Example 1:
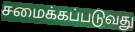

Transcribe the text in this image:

சமைக்கப்படுவது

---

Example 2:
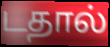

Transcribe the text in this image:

டதால்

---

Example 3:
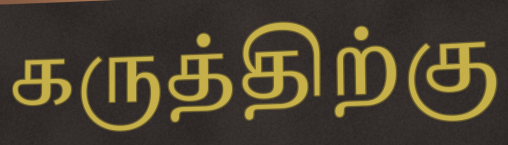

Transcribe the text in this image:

கருத்திற்கு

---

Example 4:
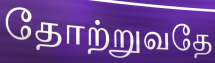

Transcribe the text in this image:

தோற்றுவதே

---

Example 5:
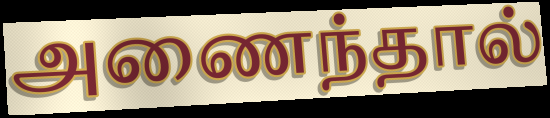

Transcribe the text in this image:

அணைந்தால்